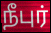
நீபுர்